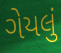
ગેયલું